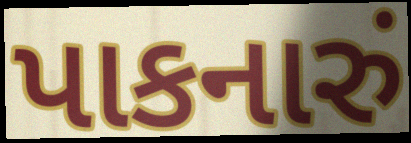
પાકનારું